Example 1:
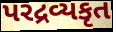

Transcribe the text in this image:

પરદ્રવ્યકૃત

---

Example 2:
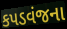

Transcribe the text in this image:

કપડવંજના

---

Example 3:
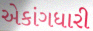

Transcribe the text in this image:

એકાંગધારી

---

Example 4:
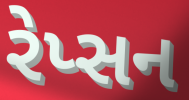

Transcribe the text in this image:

રેપ્સન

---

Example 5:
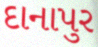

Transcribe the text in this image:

દાનાપુર